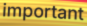
important